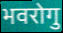
भवरोगु